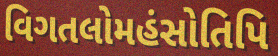
વિગતલોમહંસોતિપિ